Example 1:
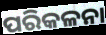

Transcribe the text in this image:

ପରିକଳନା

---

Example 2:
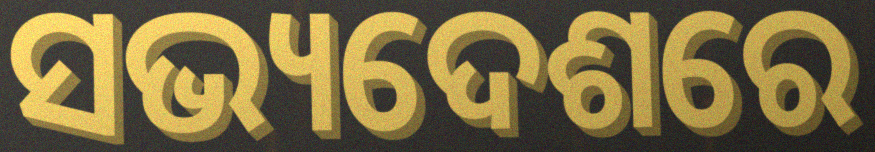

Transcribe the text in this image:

ସଭ୍ୟଦେଶରେ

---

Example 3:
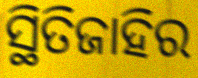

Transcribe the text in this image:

ସ୍ଥିତିଜାହିର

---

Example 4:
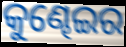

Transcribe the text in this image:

କୁଣ୍ଢେଇର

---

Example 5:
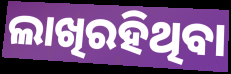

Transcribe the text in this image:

ଲାଖିରହିଥିବା